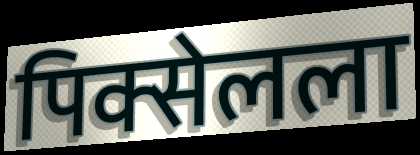
पिक्सेलला